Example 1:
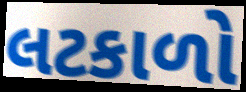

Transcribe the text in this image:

લટકાળો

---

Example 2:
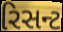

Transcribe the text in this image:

રિસન્ટ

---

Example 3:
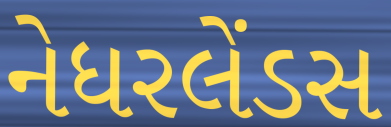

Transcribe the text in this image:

નેધરલેંડસ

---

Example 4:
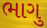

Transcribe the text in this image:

ભાગુ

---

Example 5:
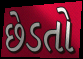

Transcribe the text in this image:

છેડતો